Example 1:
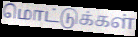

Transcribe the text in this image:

மொட்டுக்கள்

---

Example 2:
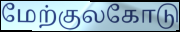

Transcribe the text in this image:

மேற்குலகோடு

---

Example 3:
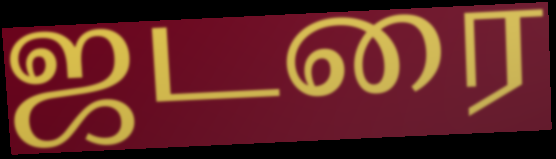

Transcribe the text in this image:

ஜடரை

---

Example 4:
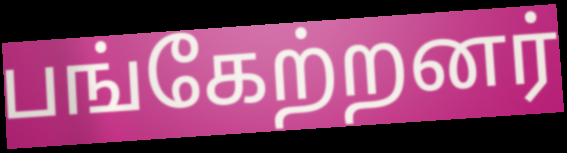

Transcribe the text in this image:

பங்கேற்றனர்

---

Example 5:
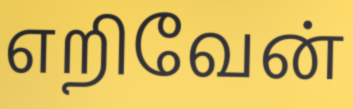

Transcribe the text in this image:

எறிவேன்